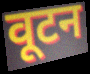
वूटन